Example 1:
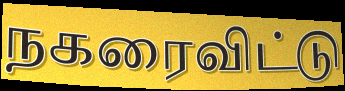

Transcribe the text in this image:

நகரைவிட்டு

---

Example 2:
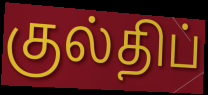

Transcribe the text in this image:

குல்திப்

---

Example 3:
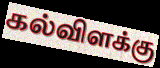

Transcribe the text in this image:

கல்விளக்கு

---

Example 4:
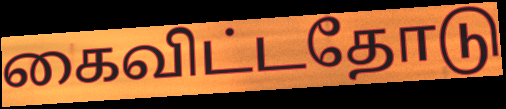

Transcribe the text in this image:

கைவிட்டதோடு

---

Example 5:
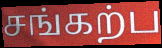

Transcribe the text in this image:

சங்கற்ப